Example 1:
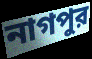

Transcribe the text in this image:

নাগপুর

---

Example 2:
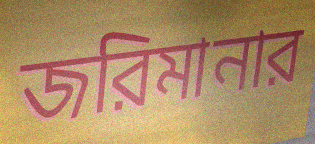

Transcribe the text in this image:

জরিমানার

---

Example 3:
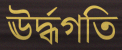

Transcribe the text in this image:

ঊর্দ্ধগতি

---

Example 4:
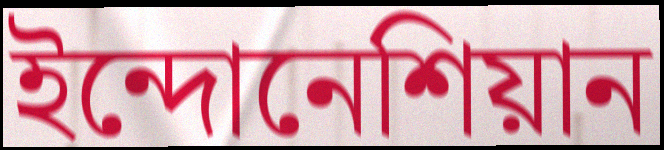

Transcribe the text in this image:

ইন্দোনেশিয়ান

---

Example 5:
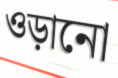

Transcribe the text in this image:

ওড়ানো